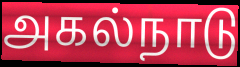
அகல்நாடு